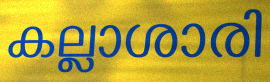
കല്ലാശാരി